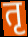
तृ